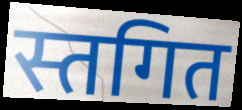
स्तगित